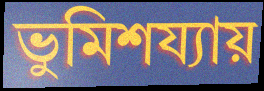
ভুমিশয্যায়